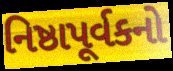
નિષ્ઠાપૂર્વકનો